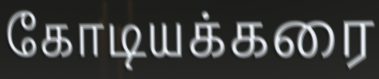
கோடியக்கரை